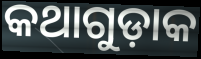
କଥାଗୁଡ଼ାକ